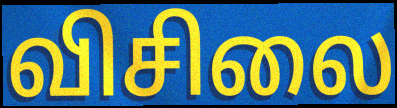
விசிலை